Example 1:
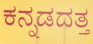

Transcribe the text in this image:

ಕನ್ನಡದತ್ತ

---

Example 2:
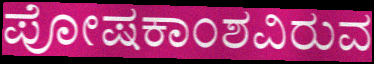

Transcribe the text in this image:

ಪೋಷಕಾಂಶವಿರುವ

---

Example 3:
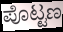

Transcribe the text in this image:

ಪೊಟ್ಟಣ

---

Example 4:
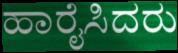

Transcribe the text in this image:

ಹಾರೈಸಿದರು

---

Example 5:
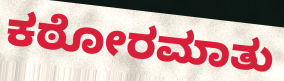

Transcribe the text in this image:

ಕಠೋರಮಾತು